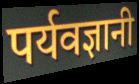
पर्यवज्ञानी